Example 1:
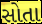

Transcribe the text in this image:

સોતા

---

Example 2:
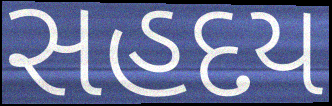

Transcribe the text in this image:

સહદય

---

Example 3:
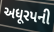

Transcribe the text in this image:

અધૂરપની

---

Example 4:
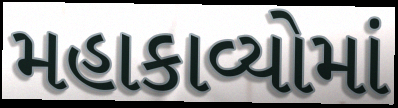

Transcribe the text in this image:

મહાકાવ્યોમાં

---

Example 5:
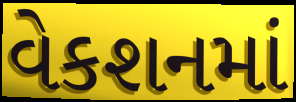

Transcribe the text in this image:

વેકશનમાં